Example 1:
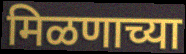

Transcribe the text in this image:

मिळणाच्या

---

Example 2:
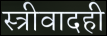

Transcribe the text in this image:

स्त्रीवादही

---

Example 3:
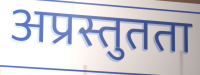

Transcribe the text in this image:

अप्रस्तुतता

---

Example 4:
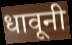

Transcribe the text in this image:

धावूनी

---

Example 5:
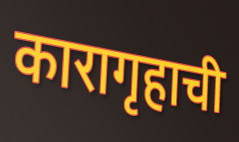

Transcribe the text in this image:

कारागृहाची